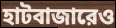
হাটবাজারেও